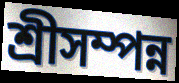
শ্রীসম্পন্ন